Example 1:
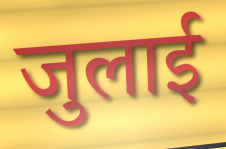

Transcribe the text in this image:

जुलाई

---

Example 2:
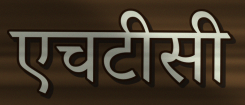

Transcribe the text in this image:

एचटीसी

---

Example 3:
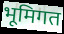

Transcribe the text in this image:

भूमिगत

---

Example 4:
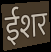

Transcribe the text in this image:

ईशर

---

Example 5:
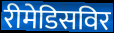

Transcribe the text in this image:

रीमेडिसविर